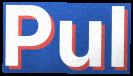
Pul